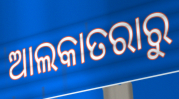
ଆଲକାତରାରୁ